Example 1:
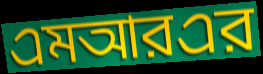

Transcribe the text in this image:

এমআরএর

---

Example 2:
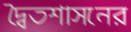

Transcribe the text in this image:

দ্বৈতশাসনের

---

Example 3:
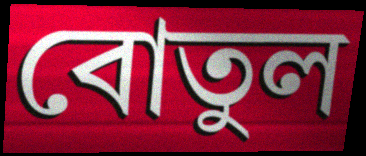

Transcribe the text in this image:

বোতুল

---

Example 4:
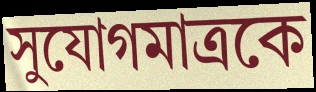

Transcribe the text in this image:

সুযোগমাত্রকে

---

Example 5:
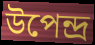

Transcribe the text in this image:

উপেন্দ্র